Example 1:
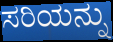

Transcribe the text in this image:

ಸರಿಯನ್ನು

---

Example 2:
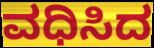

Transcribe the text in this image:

ವಧಿಸಿದ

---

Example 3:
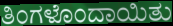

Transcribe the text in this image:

ತಿಂಗಳೊಂದಾಯಿತು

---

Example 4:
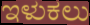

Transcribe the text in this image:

ಇಳುಕಲು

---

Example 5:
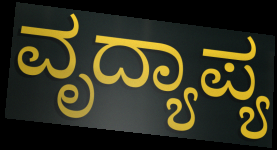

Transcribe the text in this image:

ವೃದ್ಯಾಪ್ಯ